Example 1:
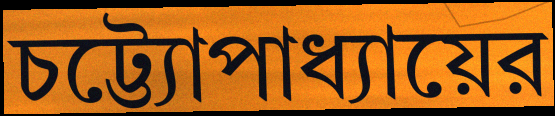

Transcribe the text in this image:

চট্ট্যোপাধ্যায়ের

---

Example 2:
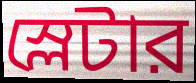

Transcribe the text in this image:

স্লেটার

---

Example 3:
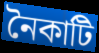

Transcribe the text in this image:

নৈকাটি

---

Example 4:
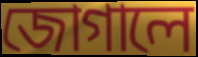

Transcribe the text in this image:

জোগালে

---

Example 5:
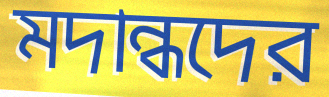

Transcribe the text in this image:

মদান্ধদের